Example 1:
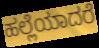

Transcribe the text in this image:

ಹಲ್ಲೆಯಾದರೆ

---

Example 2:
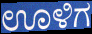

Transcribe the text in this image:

ಊಳಿಗ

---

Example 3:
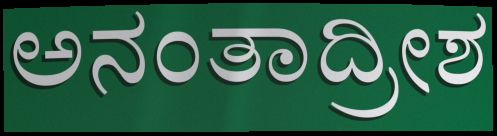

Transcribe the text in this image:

ಅನಂತಾದ್ರೀಶ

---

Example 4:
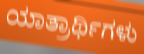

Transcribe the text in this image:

ಯಾತ್ರಾರ್ಥಿಗಳು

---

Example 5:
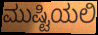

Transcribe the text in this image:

ಮುಷ್ಟಿಯಲಿ